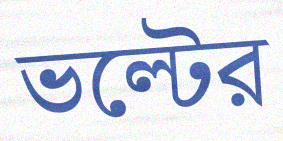
ভল্টের